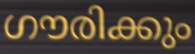
ഗൗരിക്കും